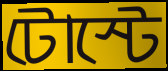
টোস্টে